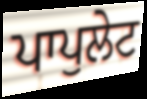
ਪਾਪੁਲੇਟ